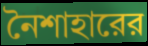
নৈশাহারের